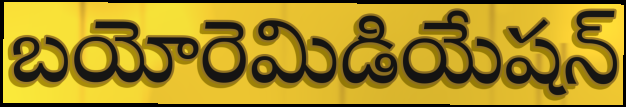
బయోరెమిడియేషన్